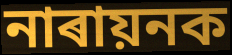
নাৰায়নক